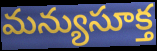
మన్యుసూక్త